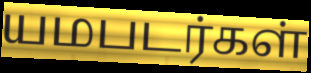
யமபடர்கள்